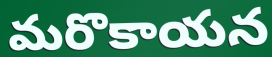
మరొకాయన